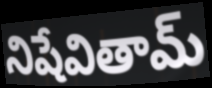
నిషేవితామ్